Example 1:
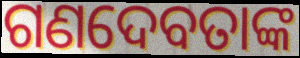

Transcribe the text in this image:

ଗଣଦେବତାଙ୍କ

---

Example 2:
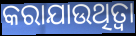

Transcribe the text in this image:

କରାଯାଉଥିତ୍ବା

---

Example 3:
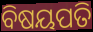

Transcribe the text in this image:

ବିଷୟପତି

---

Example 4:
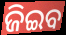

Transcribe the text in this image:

ଜିଇବ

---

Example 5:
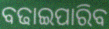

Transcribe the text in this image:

ବଢାଇପାରିବ